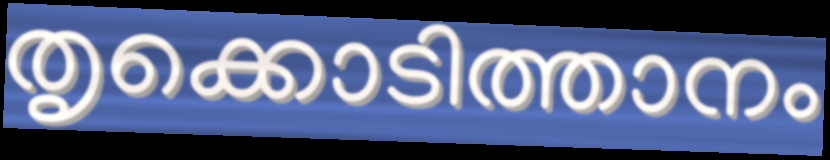
തൃക്കൊടിത്താനം